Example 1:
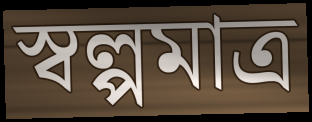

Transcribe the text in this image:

স্বল্পমাত্র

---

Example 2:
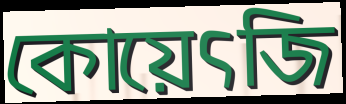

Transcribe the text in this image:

কোয়েৎজি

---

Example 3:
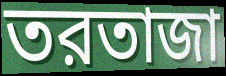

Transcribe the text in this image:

তরতাজা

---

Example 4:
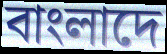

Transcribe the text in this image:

বাংলাদে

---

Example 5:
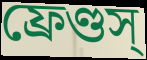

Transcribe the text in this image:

ফ্রেণ্ডস্